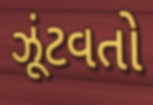
ઝૂંટવતો